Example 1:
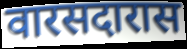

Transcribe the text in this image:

वारसदारास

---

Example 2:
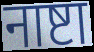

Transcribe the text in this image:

नाष्टा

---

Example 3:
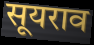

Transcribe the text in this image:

सूयराव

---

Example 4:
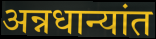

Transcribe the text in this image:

अन्नधान्यांत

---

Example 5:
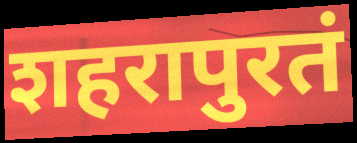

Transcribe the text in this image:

शहरापुरतं